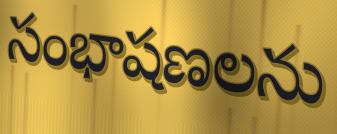
సంభాషణలను